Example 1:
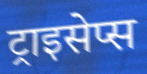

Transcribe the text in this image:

ट्राइसेप्स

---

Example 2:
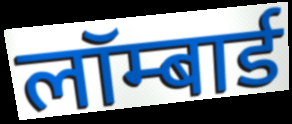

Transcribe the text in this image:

लॉम्बार्ड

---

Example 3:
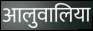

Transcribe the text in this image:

आलुवालिया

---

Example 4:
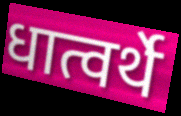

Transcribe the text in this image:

धात्वर्थे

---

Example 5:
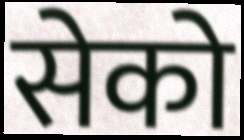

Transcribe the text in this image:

सेको